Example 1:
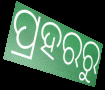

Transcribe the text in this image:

ପ୍ରହରରୁ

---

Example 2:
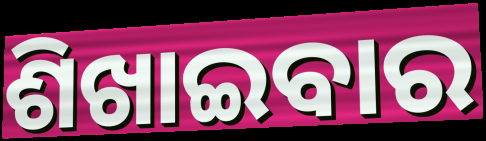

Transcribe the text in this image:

ଶିଖାଇବାର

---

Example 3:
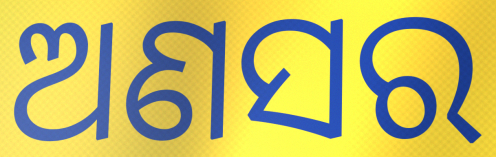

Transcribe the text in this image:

ଅଣସର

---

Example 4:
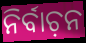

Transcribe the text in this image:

ନିର୍ବାଚ଼ନ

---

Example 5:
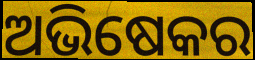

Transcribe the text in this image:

ଅଭିଷେକର